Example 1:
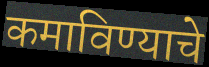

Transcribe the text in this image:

कमाविण्याचे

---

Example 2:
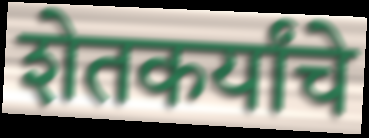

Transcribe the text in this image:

शेतकर्यांचे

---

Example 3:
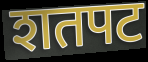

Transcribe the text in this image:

शतपट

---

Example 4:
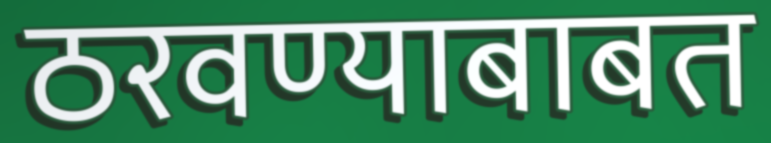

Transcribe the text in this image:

ठरवण्याबाबत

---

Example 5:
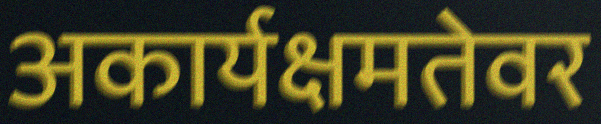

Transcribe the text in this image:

अकार्यक्षमतेवर